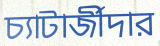
চ্যাটার্জীদার